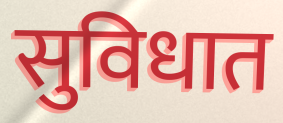
सुविधात